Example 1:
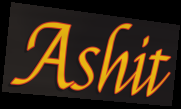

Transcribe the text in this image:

Ashit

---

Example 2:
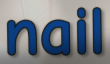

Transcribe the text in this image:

nail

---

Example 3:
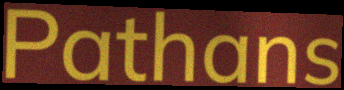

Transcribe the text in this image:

Pathans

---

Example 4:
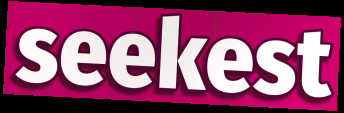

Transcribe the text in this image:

seekest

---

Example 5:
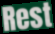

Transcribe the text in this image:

Rest